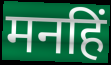
मनहिं